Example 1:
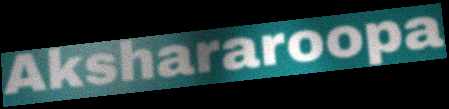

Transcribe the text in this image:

Akshararoopa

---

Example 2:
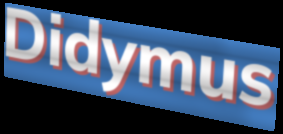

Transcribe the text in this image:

Didymus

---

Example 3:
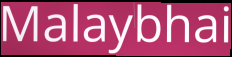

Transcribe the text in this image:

Malaybhai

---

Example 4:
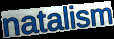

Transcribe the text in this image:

natalism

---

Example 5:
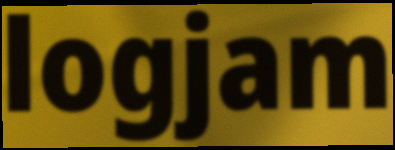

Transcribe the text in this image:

logjam